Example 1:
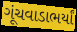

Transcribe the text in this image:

ગૂંચવાડાભર્યાં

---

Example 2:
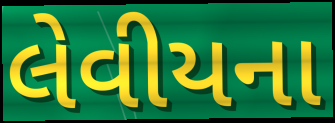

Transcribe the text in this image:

લેવીયના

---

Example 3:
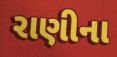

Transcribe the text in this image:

રાણીના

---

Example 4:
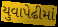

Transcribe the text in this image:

યુવાપેઢીમાં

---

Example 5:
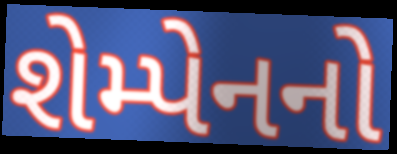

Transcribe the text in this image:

શેમ્પેનનો